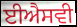
ਈਐਸਵੀ